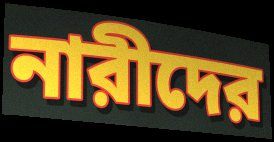
নারীদের